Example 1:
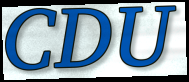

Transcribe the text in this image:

CDU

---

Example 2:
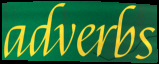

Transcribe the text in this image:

adverbs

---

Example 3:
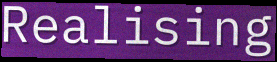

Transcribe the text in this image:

Realising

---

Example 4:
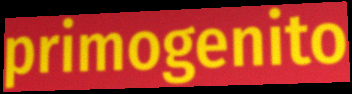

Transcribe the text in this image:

primogenito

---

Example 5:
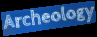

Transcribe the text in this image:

Archeology